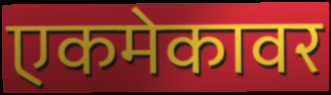
एकमेकावर